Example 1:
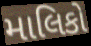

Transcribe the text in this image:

માલિકો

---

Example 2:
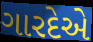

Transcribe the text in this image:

ગારદેએ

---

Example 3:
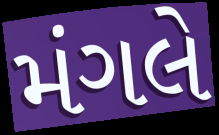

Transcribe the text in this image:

મંગલે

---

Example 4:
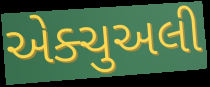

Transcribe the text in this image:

એક્ચુઅલી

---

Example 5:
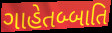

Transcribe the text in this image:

ગાહેતબ્બાતિ